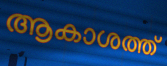
ആകാശത്ത്